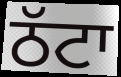
ਠੱਟਾ